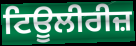
ਟਿਊਲੀਰੀਜ਼